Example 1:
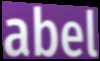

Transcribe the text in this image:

abel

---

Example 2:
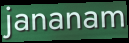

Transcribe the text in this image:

jananam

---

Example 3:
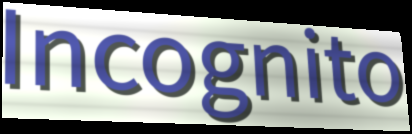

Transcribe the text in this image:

Incognito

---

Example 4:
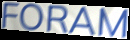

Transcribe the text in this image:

FORAM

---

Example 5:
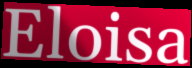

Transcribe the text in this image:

Eloisa